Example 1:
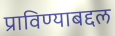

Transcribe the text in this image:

प्राविण्याबद्दल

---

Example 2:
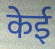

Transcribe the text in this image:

केई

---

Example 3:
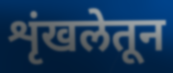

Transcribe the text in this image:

शृंखलेतून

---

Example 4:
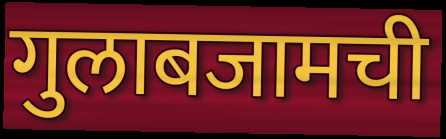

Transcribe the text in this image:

गुलाबजामची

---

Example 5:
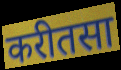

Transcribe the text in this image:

करीतसा